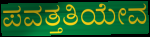
ಪವತ್ತತಿಯೇವ